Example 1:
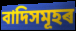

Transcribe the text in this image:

বাদিসমূহৰ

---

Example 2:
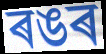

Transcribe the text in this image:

ৰঙৰ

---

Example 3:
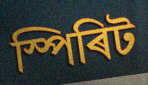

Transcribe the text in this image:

স্পিৰিট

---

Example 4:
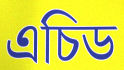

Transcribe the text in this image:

এচিড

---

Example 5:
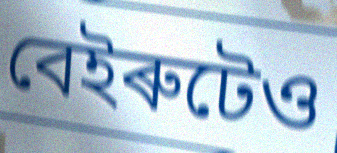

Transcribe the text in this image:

বেইৰুটেও